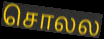
சொலல